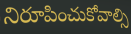
నిరూపించుకోవాల్సి